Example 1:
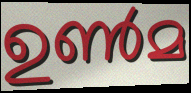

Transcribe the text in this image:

ഉൺമ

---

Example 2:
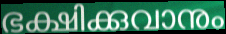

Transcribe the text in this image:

ഭക്ഷിക്കുവാനും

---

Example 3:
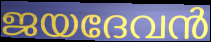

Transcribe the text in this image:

ജയദേവൻ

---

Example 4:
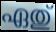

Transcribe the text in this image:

ഏതു്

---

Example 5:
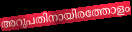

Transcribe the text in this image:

അറുപതിനായിരത്തോളം